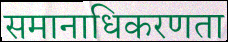
समानाधिकरणता